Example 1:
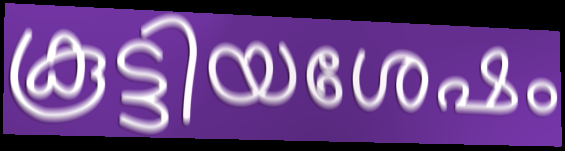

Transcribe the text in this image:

കൂട്ടിയശേഷം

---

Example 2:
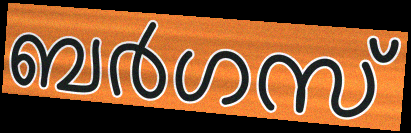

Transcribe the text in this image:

ബർഗസ്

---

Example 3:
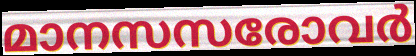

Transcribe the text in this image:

മാനസസരോവർ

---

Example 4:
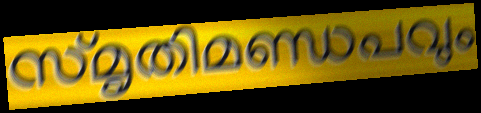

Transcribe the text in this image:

സ്മൃതിമണ്ഡപവും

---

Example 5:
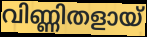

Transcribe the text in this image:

വിണ്ണിതളായ്